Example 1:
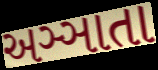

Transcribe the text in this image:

અઞ્ઞાતા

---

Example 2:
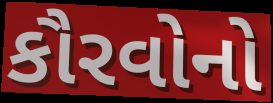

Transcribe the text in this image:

કૌરવોનો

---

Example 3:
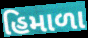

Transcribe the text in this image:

હિમાળા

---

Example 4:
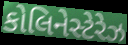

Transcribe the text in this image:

કોલિનેસ્ટેરેઝ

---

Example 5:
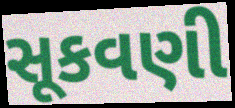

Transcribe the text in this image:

સૂકવણી